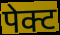
पेक्ट